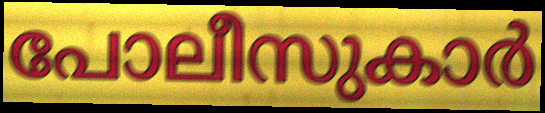
പോലീസുകാർ